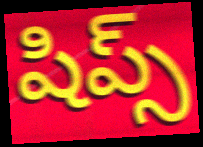
షిప్స్